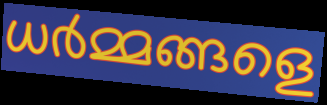
ധർമ്മങ്ങളെ